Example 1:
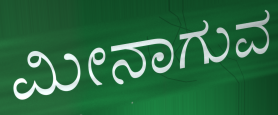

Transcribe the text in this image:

ಮೀನಾಗುವ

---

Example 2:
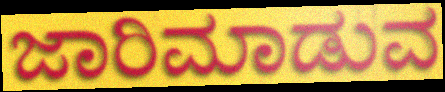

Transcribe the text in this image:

ಜಾರಿಮಾಡುವ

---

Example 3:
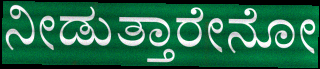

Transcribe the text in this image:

ನೀಡುತ್ತಾರೇನೋ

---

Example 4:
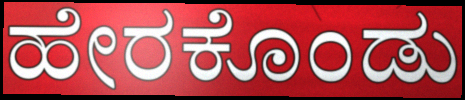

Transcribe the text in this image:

ಹೇರಕೊಂಡು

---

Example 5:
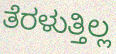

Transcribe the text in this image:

ತೆರಳುತ್ತಿಲ್ಲ